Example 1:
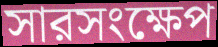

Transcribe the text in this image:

সারসংক্ষেপ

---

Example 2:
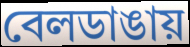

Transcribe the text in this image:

বেলডাঙায়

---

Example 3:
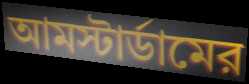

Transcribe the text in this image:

আমস্টার্ডামের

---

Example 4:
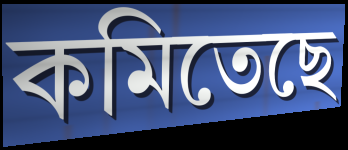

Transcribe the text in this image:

কমিতেছে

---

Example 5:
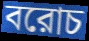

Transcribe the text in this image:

বরোচ